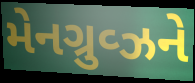
મેનગ્રુવ્ઝને